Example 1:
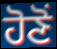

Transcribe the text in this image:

ਹੋਣੋਂ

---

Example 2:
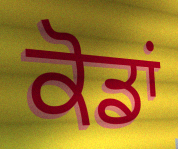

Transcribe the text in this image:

ਕੋਡਾਂ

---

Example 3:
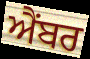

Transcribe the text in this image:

ਐਂਬਰ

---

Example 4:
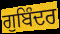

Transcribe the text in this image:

ਗੁਬਿੰਦਰ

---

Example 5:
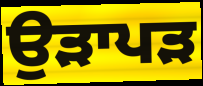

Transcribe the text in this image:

ਉੜਾਪੜ